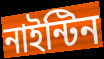
নাইন্টিন